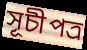
সূচীপত্র